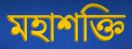
মহাশক্তি